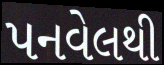
પનવેલથી